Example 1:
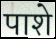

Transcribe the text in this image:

पाशे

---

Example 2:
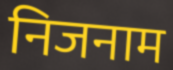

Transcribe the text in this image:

निजनाम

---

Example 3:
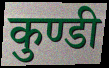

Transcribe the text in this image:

कुण्डी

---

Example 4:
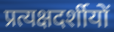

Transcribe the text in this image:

प्रत्यक्षदर्शीयों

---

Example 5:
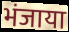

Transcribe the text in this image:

भंजाया